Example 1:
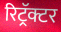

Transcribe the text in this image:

रिट्रॅक्टर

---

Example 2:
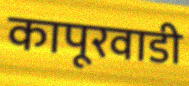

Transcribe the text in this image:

कापूरवाडी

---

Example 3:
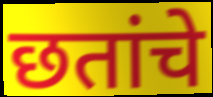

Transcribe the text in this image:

छतांचे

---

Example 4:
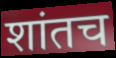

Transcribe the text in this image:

शांतच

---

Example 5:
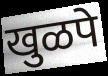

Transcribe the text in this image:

खुळपे